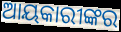
ଆୟକାରୀଙ୍କର